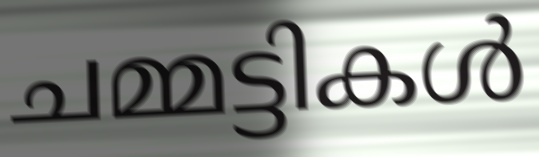
ചമ്മട്ടികൾ